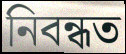
নিবন্ধত